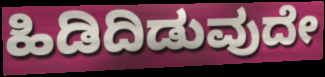
ಹಿಡಿದಿಡುವುದೇ